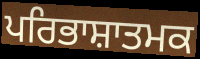
ਪਰਿਭਾਸ਼ਾਤਮਕ